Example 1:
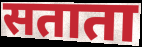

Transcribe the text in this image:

सताता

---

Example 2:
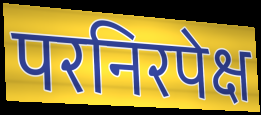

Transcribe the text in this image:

परनिरपेक्ष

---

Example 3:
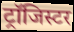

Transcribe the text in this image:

ट्रॉजिस्टर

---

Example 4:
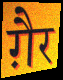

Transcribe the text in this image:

ग़ैर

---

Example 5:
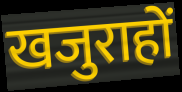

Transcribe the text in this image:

खजुराहों